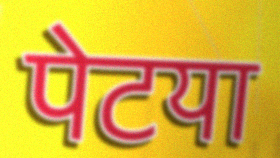
पेटया